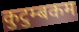
कुटुम्बकम